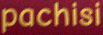
pachisi